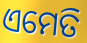
ଏମେତି